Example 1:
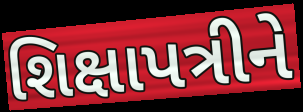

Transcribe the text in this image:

શિક્ષાપત્રીને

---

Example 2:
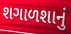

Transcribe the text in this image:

શગાળશાનું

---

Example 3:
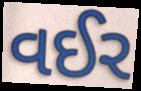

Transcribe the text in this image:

વઈર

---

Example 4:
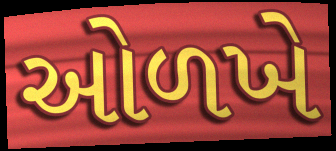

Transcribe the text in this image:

ઓળખે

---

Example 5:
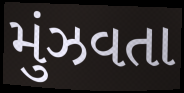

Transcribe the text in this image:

મુંઝવતા